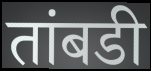
तांबडी